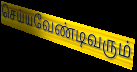
செய்யவேண்டிவரும்